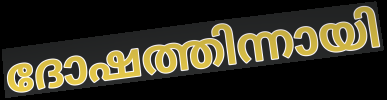
ദോഷത്തിന്നായി